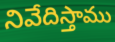
నివేదిస్తాము